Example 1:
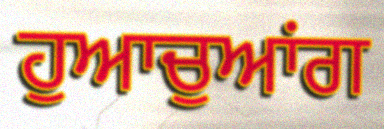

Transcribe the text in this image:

ਹੁਆਚੁਆਂਗ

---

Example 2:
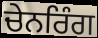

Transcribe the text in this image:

ਚੇਨਰਿੰਗ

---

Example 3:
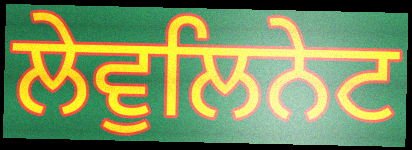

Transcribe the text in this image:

ਲੇਵੁਲਿਨੇਟ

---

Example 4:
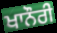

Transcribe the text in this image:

ਖਾਨੌਰੀ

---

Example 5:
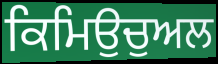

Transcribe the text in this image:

ਕਿਮਿਉਚੁਅਲ